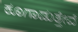
ಕೂಗಾಡುತ್ತೇವೆ